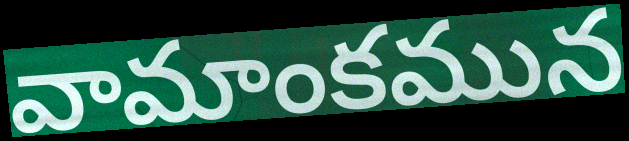
వామాంకమున